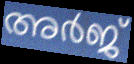
അർജ്